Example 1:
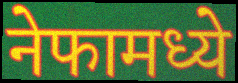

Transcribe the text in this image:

नेफामध्ये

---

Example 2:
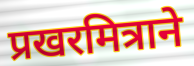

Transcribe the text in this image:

प्रखरमित्राने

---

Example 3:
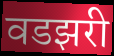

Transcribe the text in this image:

वडझरी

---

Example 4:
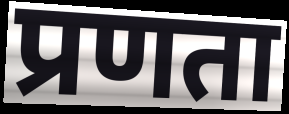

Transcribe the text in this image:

प्रणता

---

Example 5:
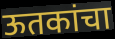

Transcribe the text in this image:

ऊतकांचा